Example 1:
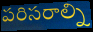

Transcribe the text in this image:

పరిసరాల్ని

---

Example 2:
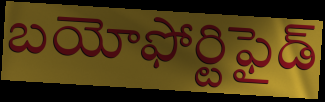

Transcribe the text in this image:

బయోఫోర్టిఫైడ్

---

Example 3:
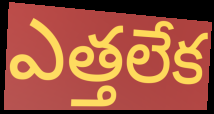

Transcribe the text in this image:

ఎత్తలేక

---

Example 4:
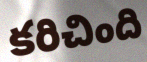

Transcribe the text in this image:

కరిచింది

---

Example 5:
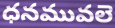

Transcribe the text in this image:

ధనమువలె